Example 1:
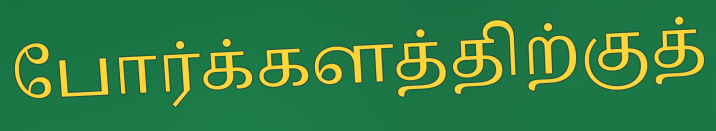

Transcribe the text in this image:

போர்க்களத்திற்குத்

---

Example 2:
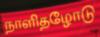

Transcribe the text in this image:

நாளிதழோடு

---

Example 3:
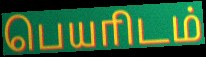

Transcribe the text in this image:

பெயரிடம்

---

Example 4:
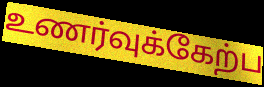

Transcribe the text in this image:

உணர்வுக்கேற்ப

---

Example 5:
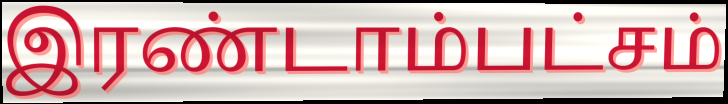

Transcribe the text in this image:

இரண்டாம்பட்சம்